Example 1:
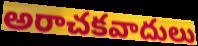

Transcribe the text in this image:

అరాచకవాదులు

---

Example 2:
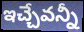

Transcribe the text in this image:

ఇచ్చేవన్నీ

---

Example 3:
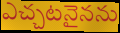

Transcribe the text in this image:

ఎచ్చటనైనను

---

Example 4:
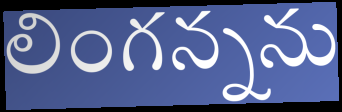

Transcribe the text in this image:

లింగన్నను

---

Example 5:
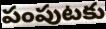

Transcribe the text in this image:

పంపుటకు